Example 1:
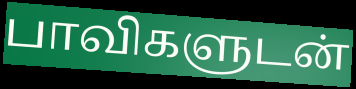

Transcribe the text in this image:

பாவிகளுடன்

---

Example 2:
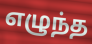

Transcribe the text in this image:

எழுந்த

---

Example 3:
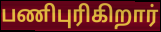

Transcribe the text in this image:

பணிபுரிகிறார்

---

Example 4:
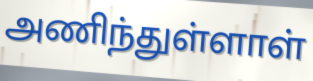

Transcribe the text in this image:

அணிந்துள்ளாள்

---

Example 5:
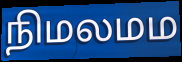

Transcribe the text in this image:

நிமலமம